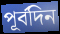
পূর্বদিন